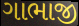
ગાભાજી